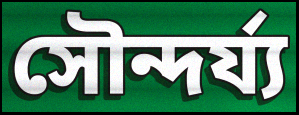
সৌন্দৰ্য্য